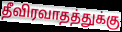
தீவிரவாதத்துக்கு